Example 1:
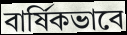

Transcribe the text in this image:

বার্ষিকভাবে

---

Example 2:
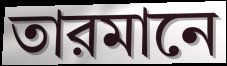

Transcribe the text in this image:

তারমানে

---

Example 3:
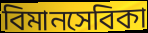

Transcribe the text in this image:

বিমানসেবিকা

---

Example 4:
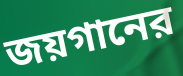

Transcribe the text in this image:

জয়গানের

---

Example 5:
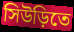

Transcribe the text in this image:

সিউড়িতে